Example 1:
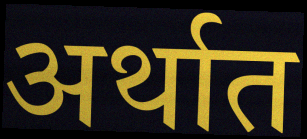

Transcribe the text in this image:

अर्थात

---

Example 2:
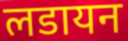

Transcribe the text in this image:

लडायन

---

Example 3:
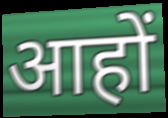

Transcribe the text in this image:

आहों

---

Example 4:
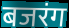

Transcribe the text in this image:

बजरंग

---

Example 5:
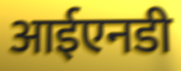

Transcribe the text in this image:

आईएनडी